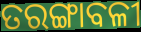
ତରଙ୍ଗାବଳୀ